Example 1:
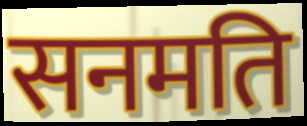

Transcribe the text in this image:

सनमति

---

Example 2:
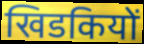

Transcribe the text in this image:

खिडकियों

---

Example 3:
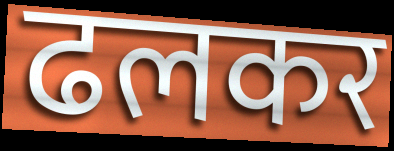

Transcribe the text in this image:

ढलकर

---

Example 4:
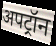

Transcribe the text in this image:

अपट्रॉन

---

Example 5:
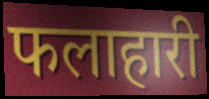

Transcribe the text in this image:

फलाहारी